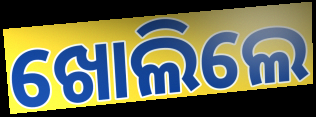
ଖୋଲିଲେ